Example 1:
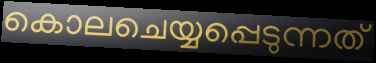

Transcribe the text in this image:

കൊലചെയ്യപ്പെടുന്നത്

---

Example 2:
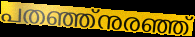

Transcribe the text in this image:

പതഞ്ഞ്നുരഞ്ഞ്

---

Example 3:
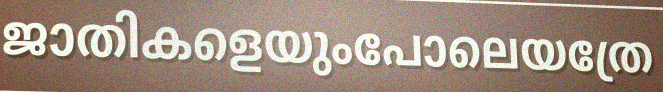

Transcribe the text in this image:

ജാതികളെയുംപോലെയത്രേ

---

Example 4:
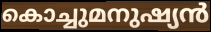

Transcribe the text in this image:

കൊച്ചുമനുഷ്യൻ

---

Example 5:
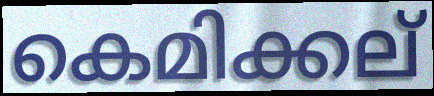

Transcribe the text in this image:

കെമിക്കല്